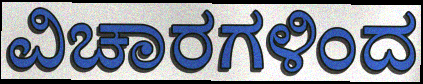
ವಿಚಾರಗಳಿಂದ